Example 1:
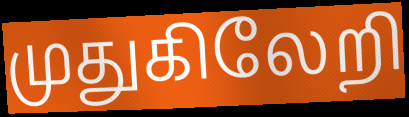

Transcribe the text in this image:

முதுகிலேறி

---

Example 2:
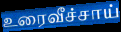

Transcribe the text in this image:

உரைவீச்சாய்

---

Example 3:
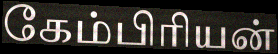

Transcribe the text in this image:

கேம்பிரியன்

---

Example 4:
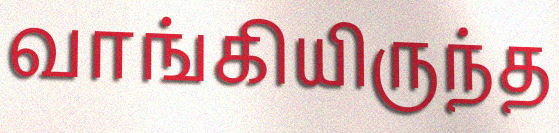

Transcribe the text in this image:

வாங்கியிருந்த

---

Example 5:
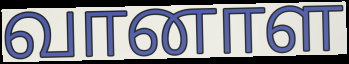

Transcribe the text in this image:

வானாள